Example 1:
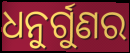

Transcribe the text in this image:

ଧନୁର୍ଗୁଣର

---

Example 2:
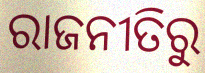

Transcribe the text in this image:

ରାଜନୀତିରୁ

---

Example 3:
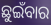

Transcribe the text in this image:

ଛୁଇଁବାର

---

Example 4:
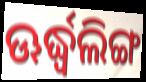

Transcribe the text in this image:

ଊର୍ଦ୍ଧ୍ୱଲିଙ୍ଗ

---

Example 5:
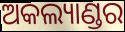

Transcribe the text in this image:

ଅକଲ୍ୟାଣ୍ଡର